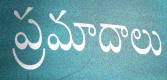
ప్రమాదాలు